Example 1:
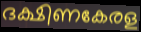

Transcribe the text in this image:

ദക്ഷിണകേരള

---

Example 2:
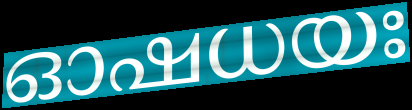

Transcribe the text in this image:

ഓഷധയഃ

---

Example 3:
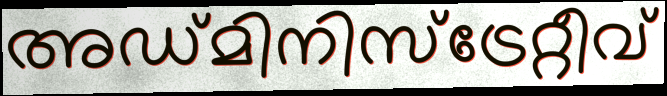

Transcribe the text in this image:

അഡ്മിനിസ്ട്രേറ്റീവ്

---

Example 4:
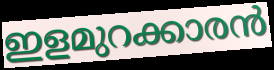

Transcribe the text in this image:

ഇളമുറക്കാരൻ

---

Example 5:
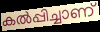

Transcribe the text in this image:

കൽപ്പിച്ചാണ്